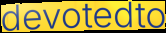
devotedto